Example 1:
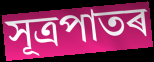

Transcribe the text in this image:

সূত্ৰপাতৰ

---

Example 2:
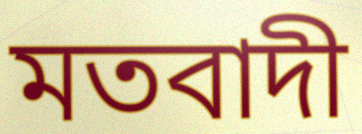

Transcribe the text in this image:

মতবাদী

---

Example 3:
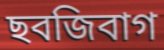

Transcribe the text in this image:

ছবজিবাগ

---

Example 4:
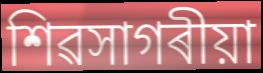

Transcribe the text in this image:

শিৱসাগৰীয়া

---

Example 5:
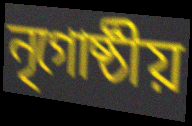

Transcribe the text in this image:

নৃগোষ্ঠীয়